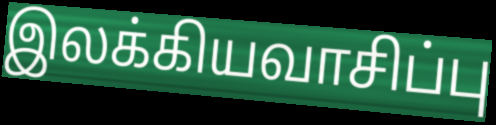
இலக்கியவாசிப்பு